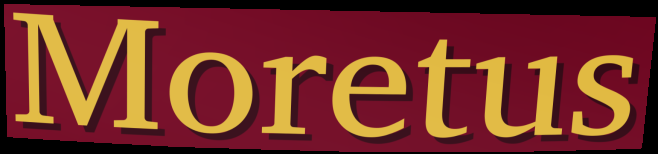
Moretus